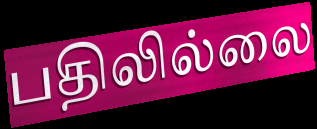
பதிலில்லை